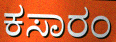
ಕಸಾರಂ